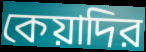
কেয়াদির